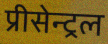
प्रीसेन्ट्रल